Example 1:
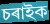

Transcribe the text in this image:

চৰাইক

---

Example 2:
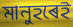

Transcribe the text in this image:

মানুহৰেই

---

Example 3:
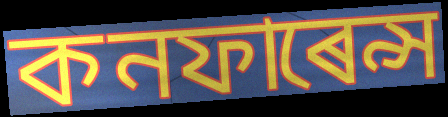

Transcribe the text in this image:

কনফাৰেন্স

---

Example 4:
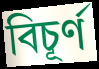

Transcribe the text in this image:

বিচূৰ্ণ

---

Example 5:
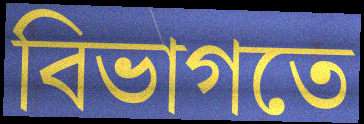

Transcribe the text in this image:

বিভাগতে